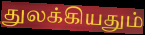
துலக்கியதும்